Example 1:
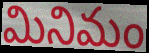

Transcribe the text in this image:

మినిమం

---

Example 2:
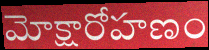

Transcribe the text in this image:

మోక్షారోహణం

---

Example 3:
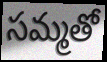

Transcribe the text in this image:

సమ్మతో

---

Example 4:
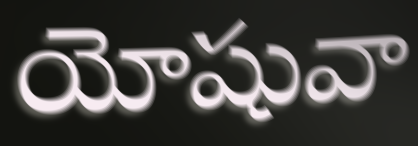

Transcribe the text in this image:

యోషువా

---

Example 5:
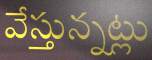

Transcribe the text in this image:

వేస్తున్నట్లు